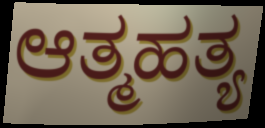
ಆತ್ಮಹತ್ಯ